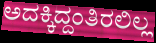
ಅದಕ್ಕಿದ್ದಂತಿರಲಿಲ್ಲ